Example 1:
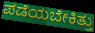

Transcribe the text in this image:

ಪಡೆಯಬೇಕಿತ್ತು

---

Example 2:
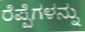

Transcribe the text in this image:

ರೆಪ್ಪೆಗಳನ್ನು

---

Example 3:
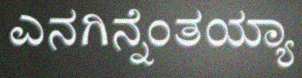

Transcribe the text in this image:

ಎನಗಿನ್ನೆಂತಯ್ಯಾ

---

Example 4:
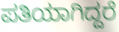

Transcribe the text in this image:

ಪತಿಯಾಗಿದ್ದರೆ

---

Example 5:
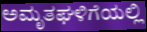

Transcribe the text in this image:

ಅಮೃತಘಳಿಗೆಯಲ್ಲಿ